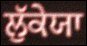
ਲੁੱਕੇਯਾ